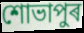
শোভাপুৰ